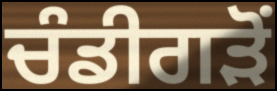
ਚੰਡੀਗੜੋਂ